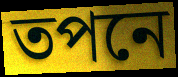
তপনে